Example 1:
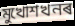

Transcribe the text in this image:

মুখোশখনৰ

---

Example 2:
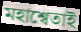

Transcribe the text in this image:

মহাশ্বেতাই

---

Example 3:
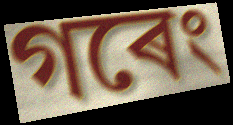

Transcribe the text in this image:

গৰেং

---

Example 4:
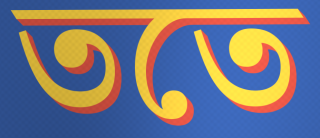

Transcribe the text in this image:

ততে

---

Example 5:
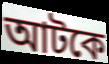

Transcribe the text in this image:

আটকে